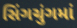
સિંગચુંગમાં